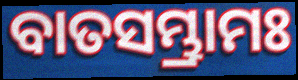
ବାତସମ୍ଭ୍ରାମଃ